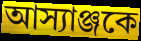
আস্যাঞ্জকে